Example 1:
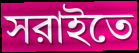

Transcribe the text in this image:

সরাইতে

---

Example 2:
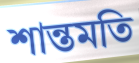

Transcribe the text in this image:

শান্তমতি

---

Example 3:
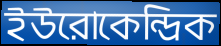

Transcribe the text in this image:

ইউরোকেন্দ্রিক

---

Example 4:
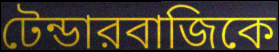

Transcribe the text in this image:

টেন্ডারবাজিকে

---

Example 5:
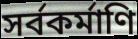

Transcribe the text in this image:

সর্বকর্মাণি